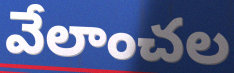
వేలాంచల